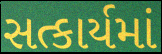
સત્કાર્યમાં